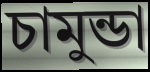
চামুন্ডা